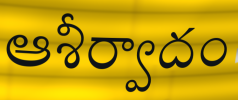
ఆశీర్వాదం